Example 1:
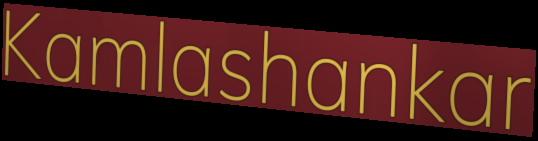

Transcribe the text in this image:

Kamlashankar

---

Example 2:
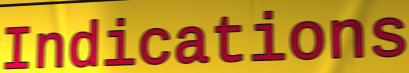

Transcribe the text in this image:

Indications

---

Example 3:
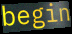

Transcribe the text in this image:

begin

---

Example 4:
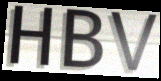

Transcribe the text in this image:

HBV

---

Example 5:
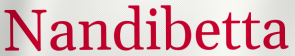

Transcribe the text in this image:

Nandibetta